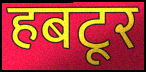
हबटूर